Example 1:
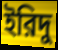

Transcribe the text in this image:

ইরিদু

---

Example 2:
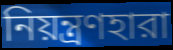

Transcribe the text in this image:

নিয়ন্ত্রণহারা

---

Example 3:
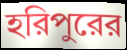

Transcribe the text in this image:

হরিপুরের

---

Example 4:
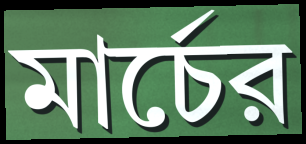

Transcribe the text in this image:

মার্চের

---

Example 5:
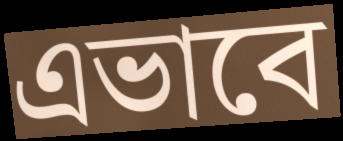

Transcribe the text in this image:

এভাবে